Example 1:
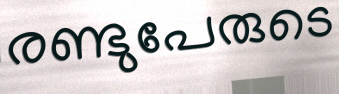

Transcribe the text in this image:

രണ്ടുപേരുടെ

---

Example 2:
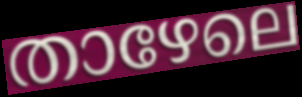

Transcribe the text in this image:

താഴേലെ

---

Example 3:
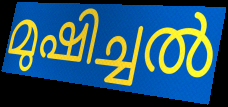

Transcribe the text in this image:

മുഷിച്ചൽ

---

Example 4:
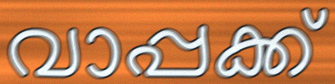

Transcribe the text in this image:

വാപ്പക്ക്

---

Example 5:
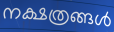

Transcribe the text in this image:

നക്ഷത്രങ്ങൾ